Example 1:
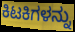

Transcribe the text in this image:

ಕಿಟಕಿಗಳನ್ನು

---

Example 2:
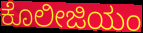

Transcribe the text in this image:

ಕೊಲೀಜಿಯಂ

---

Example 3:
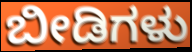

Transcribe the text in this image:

ಬೀಡಿಗಳು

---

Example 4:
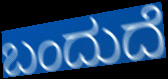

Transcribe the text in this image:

ಬಂದುದೆ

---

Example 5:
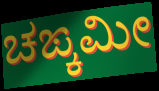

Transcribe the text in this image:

ಚಙ್ಕಮೀ